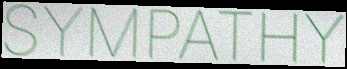
SYMPATHY